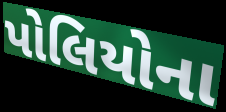
પોલિયોના